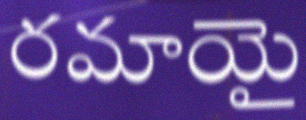
రమాయై